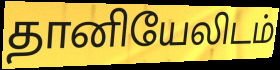
தானியேலிடம்